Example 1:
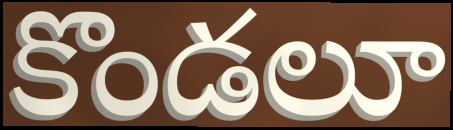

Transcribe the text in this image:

కొండలూ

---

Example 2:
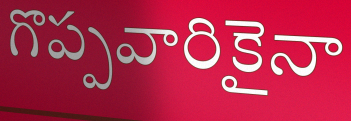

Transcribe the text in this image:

గొప్పవారికైనా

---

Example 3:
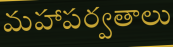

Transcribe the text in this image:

మహాపర్వతాలు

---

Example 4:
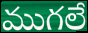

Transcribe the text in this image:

ముగలే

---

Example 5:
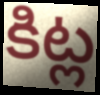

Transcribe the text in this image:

కిట్ల